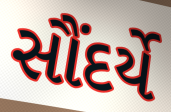
સૌંદર્યે